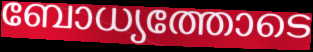
ബോധ്യത്തോടെ